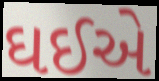
ઘઈએ